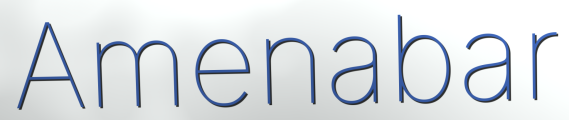
Amenabar